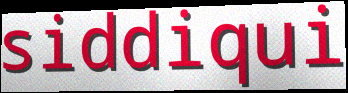
siddiqui